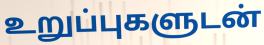
உறுப்புகளுடன்